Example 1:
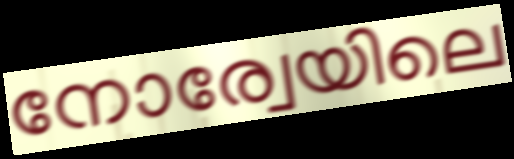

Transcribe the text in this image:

നോര്വേയിലെ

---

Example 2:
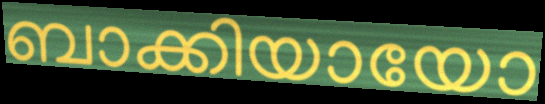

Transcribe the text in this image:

ബാക്കിയായോ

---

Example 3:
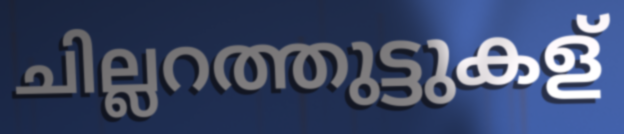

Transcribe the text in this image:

ചില്ലറത്തുട്ടുകള്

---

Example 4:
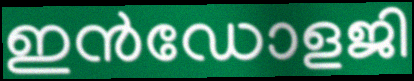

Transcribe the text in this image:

ഇൻഡോളജി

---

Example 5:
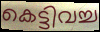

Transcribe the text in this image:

കെട്ടിവച്ച